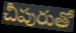
చీపురుతో